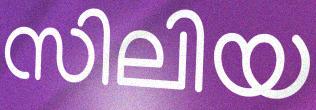
സിലിയ